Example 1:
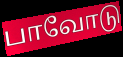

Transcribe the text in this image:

பாவோடு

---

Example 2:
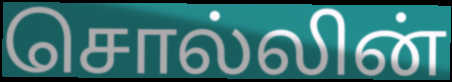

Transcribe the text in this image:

சொல்லின்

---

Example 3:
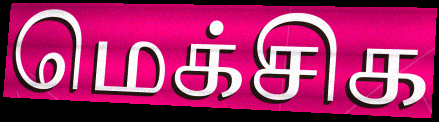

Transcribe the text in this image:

மெக்சிக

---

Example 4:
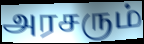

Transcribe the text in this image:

அரசரும்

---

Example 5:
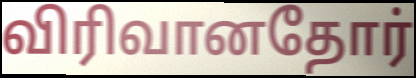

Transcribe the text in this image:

விரிவானதோர்